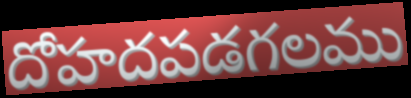
దోహదపడగలము